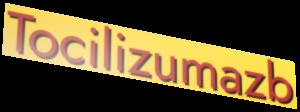
Tocilizumazb